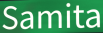
Samita